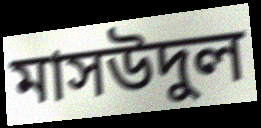
মাসউদুল